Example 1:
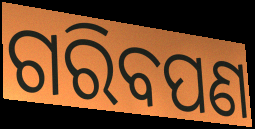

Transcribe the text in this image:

ଗରିବପଣ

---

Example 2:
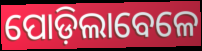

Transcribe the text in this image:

ପୋଡ଼ିଲାବେଳେ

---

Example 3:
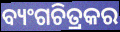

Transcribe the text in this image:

ବ୍ୟଂଗଚିତ୍ରକର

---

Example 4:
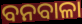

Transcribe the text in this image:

ବନବାଳା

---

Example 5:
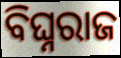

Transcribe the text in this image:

ବିଘ୍ନରାଜ